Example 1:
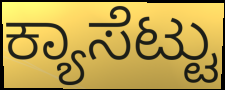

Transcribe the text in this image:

ಕ್ಯಾಸೆಟ್ಟು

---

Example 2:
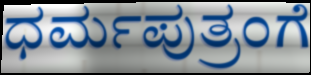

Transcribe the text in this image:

ಧರ್ಮಪುತ್ರಂಗೆ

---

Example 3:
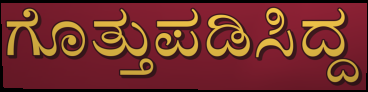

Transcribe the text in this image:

ಗೊತ್ತುಪಡಿಸಿದ್ದ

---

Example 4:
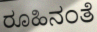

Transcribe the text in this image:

ರೂಹಿನಂತೆ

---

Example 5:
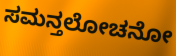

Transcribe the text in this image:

ಸಮನ್ತಲೋಚನೋ